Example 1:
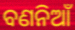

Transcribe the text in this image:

ବଣନିଆଁ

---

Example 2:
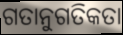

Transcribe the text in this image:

ଗତାନୁଗତିକତା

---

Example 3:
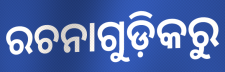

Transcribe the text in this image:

ରଚନାଗୁଡ଼ିକରୁ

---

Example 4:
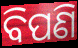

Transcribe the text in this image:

ବିପଣି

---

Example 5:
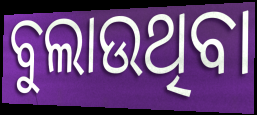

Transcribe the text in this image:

ବୁଲାଉଥିବା